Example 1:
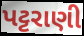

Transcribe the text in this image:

પટ્ટરાણી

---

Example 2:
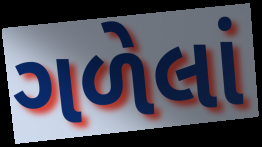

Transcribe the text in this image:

ગળેલાં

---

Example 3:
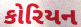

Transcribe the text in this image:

કોરિયન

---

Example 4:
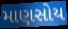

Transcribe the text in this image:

માણસોય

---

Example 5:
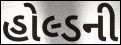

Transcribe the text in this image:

હોલ્ડની